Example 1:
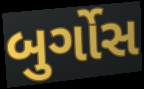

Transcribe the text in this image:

બુર્ગોસ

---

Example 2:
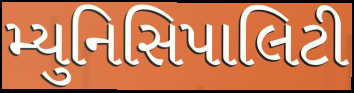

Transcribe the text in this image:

મ્યુનિસિપાલિટી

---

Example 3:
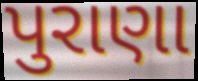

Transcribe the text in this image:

પુરાણા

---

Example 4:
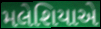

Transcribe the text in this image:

મલેશિયાએ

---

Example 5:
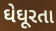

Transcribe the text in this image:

ઘેઘૂરતા